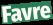
Favre